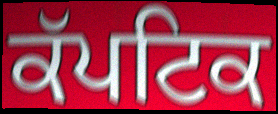
ਕੱਪਟਿਕ